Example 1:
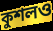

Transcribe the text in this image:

কুশলও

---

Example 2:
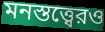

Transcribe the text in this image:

মনস্তত্ত্বেরও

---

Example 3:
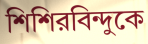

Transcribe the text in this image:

শিশিরবিন্দুকে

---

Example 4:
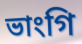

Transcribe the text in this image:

ভাংগি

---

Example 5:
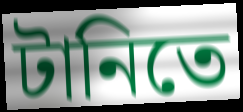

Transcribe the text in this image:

টানিতে